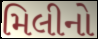
મિલીનો